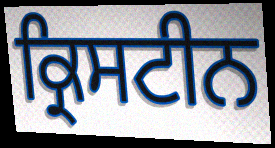
ਕ੍ਰਿਸਟੀਨ